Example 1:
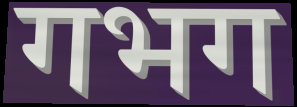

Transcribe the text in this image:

गभग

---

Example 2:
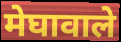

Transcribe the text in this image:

मेघावाले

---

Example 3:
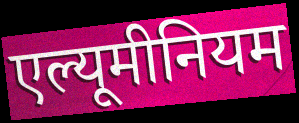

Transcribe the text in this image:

एल्‍यूमीनियम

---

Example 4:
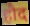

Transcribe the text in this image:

हौद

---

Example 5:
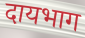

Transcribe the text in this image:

दायभाग